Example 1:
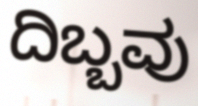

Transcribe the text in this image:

ದಿಬ್ಬವು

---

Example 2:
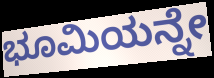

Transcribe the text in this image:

ಭೂಮಿಯನ್ನೇ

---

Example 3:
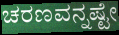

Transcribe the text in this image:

ಚರಣವನ್ನಷ್ಟೇ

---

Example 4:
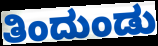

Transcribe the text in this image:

ತಿಂದುಂಡು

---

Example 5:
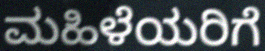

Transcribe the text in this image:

ಮಹಿಳೆಯರಿಗೆ